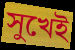
সুখেই